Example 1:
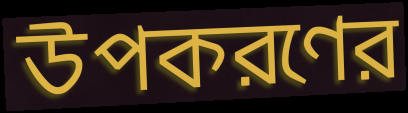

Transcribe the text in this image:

উপকরণের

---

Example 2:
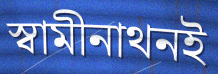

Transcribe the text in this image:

স্বামীনাথনই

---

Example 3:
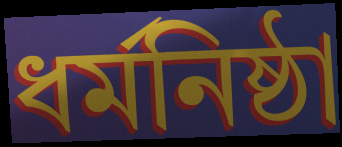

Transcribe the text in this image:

ধর্মনিষ্ঠা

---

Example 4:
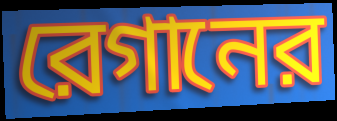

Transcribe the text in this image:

রেগানের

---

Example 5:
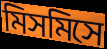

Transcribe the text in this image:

মিসমিসে